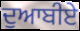
ਦੁਆਬੀਏ